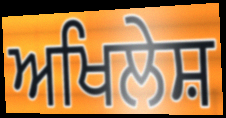
ਅਖਿਲੇਸ਼